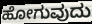
ಹೋಗುವುದು